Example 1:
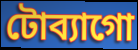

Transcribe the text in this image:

টোব্যাগো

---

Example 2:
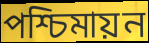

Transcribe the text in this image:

পশ্চিমায়ন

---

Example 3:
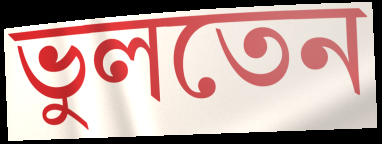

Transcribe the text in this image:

ভুলতেন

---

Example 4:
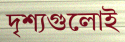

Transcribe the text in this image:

দৃশ্যগুলোই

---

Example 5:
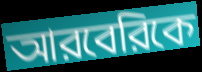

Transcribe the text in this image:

আরবেরিকে